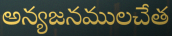
అన్యజనములచేత